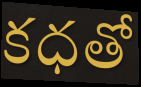
కధతో